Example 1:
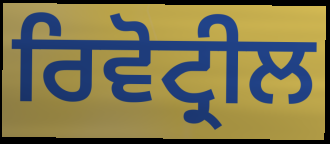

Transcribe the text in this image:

ਰਿਵੋਟ੍ਰੀਲ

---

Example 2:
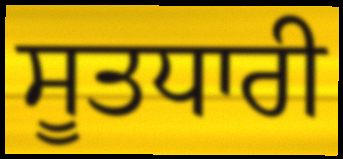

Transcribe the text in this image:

ਸੂਤਧਾਰੀ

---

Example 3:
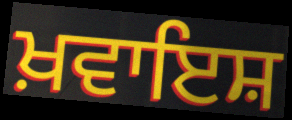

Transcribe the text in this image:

ਖ਼ਵਾਇਸ਼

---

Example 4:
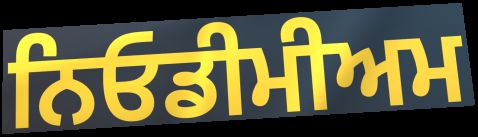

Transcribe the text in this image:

ਨਿਓਡੀਮੀਅਮ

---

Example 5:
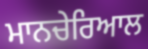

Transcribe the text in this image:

ਮਾਨਚੇਰਿਆਲ